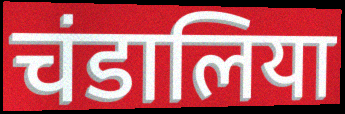
चंडालिया